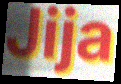
Jija